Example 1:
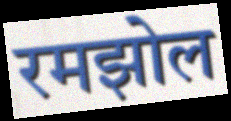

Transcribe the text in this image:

रमझोल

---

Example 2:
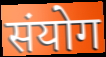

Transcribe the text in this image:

संयोग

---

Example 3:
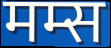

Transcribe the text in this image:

मम्स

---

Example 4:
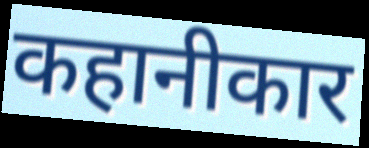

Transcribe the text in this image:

कहानीकार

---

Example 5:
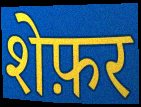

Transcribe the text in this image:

शेफ़र